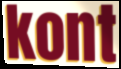
kont